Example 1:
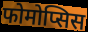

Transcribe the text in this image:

फोमोप्सिस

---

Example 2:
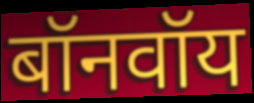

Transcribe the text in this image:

बॉनवॉय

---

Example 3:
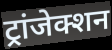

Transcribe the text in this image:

ट्रांजेक्शन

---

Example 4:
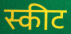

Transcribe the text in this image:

स्कीट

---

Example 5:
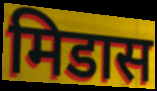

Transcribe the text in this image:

मिडास